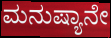
ಮನುಷ್ಯಾನೇ